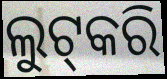
ଲୁଟ୍‌କରି